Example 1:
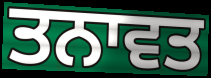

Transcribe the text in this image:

ਤਨਾਵਤ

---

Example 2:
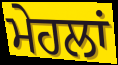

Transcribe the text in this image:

ਮੇਹਲਾਂ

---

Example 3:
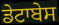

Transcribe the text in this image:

ਡੇਟਾਬੇਸ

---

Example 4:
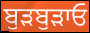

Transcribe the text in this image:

ਬੁੜਬੁੜਾਓ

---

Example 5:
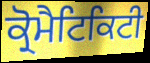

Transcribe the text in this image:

ਕ੍ਰੋਮੈਟਿਕਿਟੀ